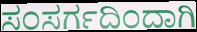
ಸಂಸರ್ಗದಿಂದಾಗಿ